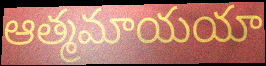
ఆత్మమాయయా